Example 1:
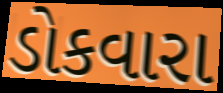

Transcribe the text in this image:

ડોકવારા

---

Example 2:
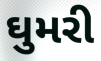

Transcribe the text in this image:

ઘુમરી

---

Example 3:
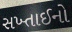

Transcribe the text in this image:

સખ્તાઈનો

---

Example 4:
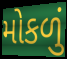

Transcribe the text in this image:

મોકળું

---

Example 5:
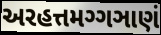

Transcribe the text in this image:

અરહત્તમગ્ગઞાણં